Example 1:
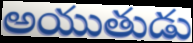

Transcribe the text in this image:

అయుతుడు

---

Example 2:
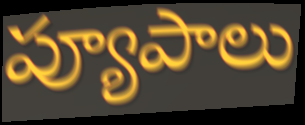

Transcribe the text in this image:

ప్యూపాలు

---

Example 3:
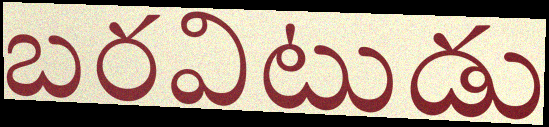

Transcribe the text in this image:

బరవిటుడు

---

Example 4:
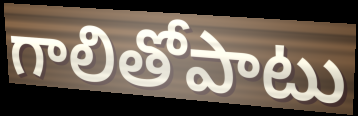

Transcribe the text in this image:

గాలితోపాటు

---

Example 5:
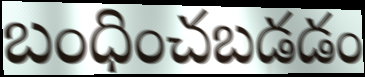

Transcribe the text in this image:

బంధించబడడం